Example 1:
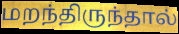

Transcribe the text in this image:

மறந்திருந்தால்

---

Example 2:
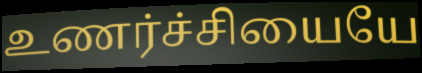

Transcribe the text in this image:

உணர்ச்சியையே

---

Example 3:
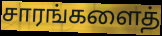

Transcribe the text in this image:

சாரங்களைத்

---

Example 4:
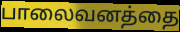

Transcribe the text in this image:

பாலைவனத்தை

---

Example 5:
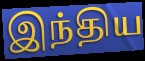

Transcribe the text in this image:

இந்திய